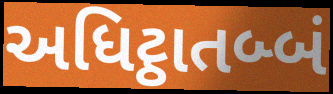
અધિટ્ઠાતબ્બં